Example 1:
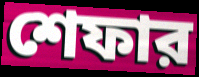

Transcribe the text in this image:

শেফার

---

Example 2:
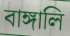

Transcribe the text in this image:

বাঙ্গালি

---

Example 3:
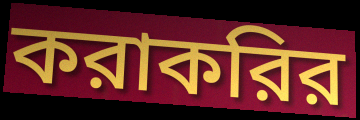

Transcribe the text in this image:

করাকরির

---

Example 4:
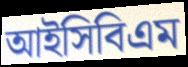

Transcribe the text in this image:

আইসিবিএম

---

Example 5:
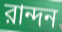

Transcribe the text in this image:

রান্দন